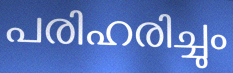
പരിഹരിച്ചും